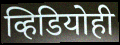
व्हिडियोही